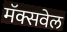
मॅक्सवेल